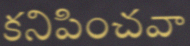
కనిపించవా